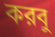
করবু